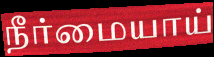
நீர்மையாய்